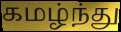
கமழ்ந்து